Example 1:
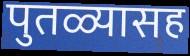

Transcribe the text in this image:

पुतळ्यासह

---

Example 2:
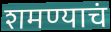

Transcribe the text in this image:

शमण्याचं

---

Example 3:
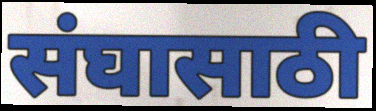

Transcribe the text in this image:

संघासाठी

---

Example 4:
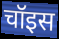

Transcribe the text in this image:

चॉइस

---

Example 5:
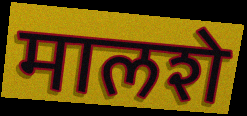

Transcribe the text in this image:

मालशे